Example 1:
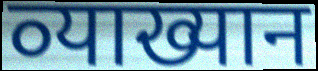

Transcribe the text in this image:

व्‍याख्‍यान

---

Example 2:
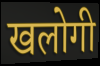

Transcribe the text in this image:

खलोगी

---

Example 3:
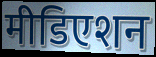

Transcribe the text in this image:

मीडिएशन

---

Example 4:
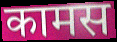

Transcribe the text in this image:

कामस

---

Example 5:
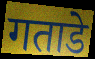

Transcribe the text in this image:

गताडे